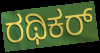
ರಥಿಕರ್